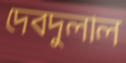
দেবদুলাল